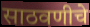
साठवणीचे